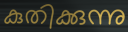
കുതിക്കുന്നു